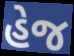
હેજ